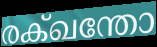
രക്ഖന്തോ